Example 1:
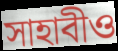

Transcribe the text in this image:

সাহাবীও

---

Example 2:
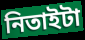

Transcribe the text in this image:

নিতাইটা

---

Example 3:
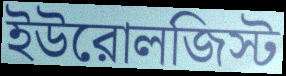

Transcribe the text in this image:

ইউরোলজিস্ট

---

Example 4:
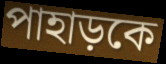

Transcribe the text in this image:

পাহাড়কে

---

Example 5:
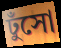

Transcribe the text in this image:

ঢুঁসো